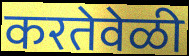
करतेवेळी